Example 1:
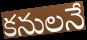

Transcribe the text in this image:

కనులనే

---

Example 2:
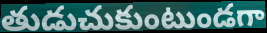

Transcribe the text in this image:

తుడుచుకుంటుండగా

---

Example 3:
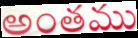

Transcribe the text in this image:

అంతము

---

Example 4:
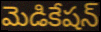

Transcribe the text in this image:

మెడికేషన్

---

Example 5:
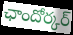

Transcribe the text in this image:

ఛాందోర్కర్